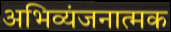
अभिव्यंजनात्मक